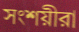
সংশয়ীরা